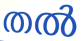
തൽ